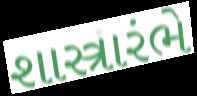
શાસ્ત્રારંભે